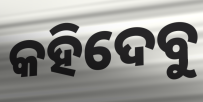
କହିଦେବୁ